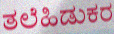
ತಲೆಹಿಡುಕರ